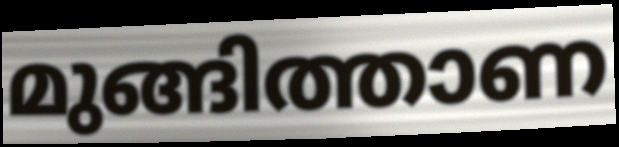
മുങ്ങിത്താണ